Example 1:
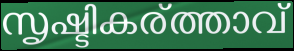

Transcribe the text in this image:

സൃഷ്ടികര്ത്താവ്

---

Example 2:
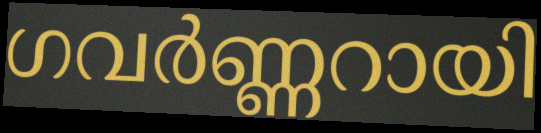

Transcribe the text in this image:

ഗവർണ്ണറായി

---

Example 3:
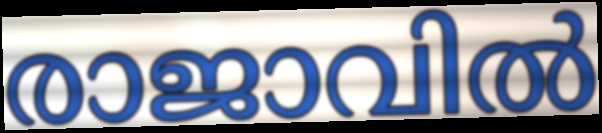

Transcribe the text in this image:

രാജാവിൽ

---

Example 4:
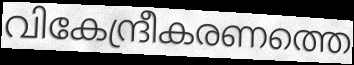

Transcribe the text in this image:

വികേന്ദ്രീകരണത്തെ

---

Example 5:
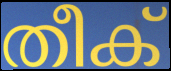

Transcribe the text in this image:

തീക്